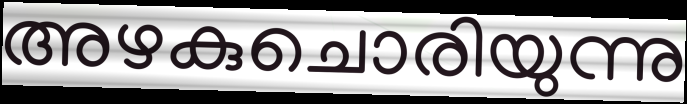
അഴകുചൊരിയുന്നു